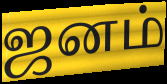
ஜனம்